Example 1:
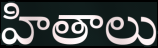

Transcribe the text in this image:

హితాలు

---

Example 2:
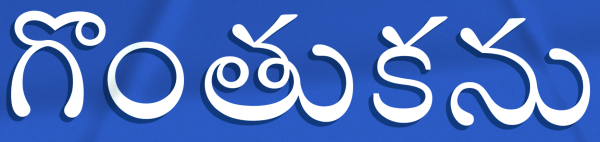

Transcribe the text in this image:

గొంతుకను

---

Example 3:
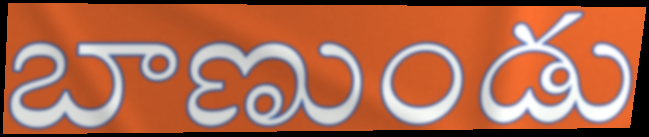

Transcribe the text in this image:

బాణుండు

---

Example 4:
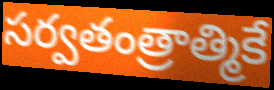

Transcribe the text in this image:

సర్వతంత్రాత్మికే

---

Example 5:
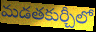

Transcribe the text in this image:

మడతకుర్చీలో